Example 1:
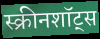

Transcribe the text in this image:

स्क्रीनशॉट्स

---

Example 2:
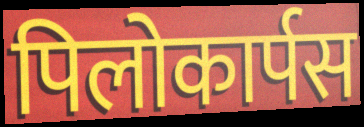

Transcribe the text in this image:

पिलोकार्पस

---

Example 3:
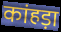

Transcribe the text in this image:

कांहड़ा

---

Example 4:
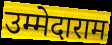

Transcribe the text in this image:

उम्मेदाराम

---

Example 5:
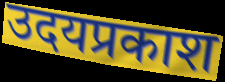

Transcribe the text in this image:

उदयप्रकाश